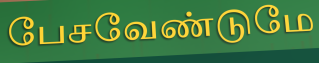
பேசவேண்டுமே